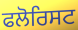
ਫਲੋਰਿਸਟ